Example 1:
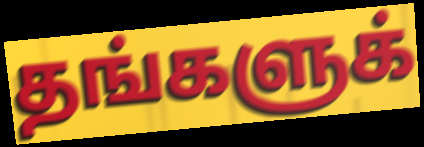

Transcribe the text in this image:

தங்களுக்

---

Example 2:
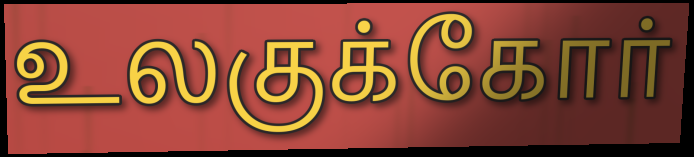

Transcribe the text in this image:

உலகுக்கோர்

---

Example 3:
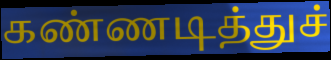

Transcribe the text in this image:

கண்ணடித்துச்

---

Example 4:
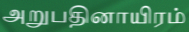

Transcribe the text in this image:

அறுபதினாயிரம்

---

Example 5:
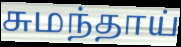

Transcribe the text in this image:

சுமந்தாய்